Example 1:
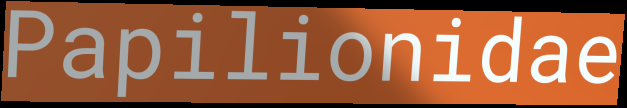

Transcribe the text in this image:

Papilionidae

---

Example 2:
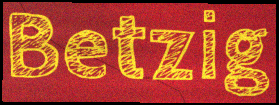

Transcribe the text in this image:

Betzig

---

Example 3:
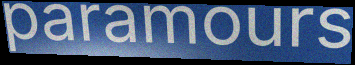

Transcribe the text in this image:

paramours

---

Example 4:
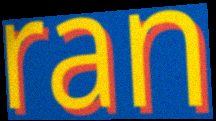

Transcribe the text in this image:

ran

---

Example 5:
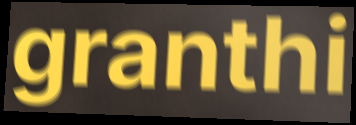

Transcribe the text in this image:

granthi